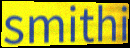
smithi